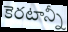
కెరటాన్నీ